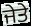
ਜੇਤੇ